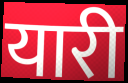
यारी